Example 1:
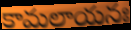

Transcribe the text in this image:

కామలాయనః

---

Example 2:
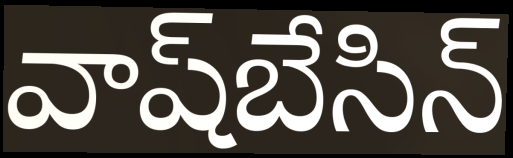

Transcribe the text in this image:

వాష్‌బేసిన్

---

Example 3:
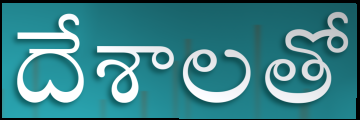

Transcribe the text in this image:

దేశాలతో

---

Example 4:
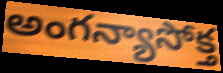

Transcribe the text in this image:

అంగన్యాసోక్త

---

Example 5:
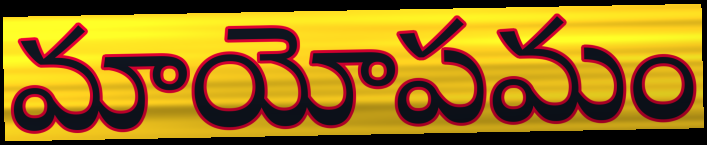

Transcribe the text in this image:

మాయోపమం